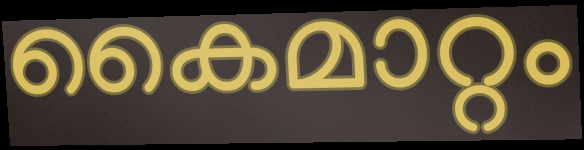
കൈമാറ്റം